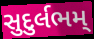
સુદુર્લભમ્